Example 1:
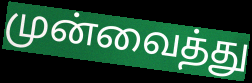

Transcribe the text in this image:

முன்வைத்து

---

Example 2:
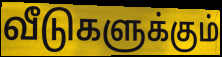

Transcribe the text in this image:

வீடுகளுக்கும்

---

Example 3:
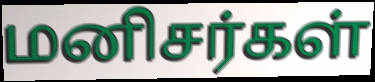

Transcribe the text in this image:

மனிசர்கள்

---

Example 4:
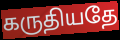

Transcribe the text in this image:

கருதியதே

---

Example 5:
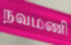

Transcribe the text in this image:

நவமணி